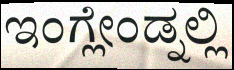
ಇಂಗ್ಲೇಂಡ್ನಲ್ಲಿ